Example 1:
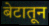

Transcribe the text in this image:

बेटातून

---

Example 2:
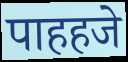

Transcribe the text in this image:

पाहहजे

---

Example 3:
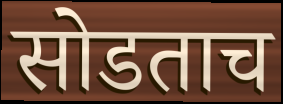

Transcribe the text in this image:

सोडताच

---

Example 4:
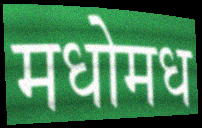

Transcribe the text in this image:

मधोमध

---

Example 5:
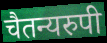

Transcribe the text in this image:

चैतन्यरुपी